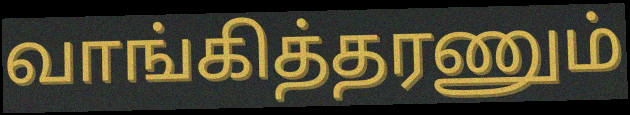
வாங்கித்தரணும்